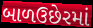
બાળઉછેરમાં